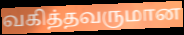
வகித்தவருமான